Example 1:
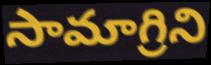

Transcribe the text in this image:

సామాగ్రిని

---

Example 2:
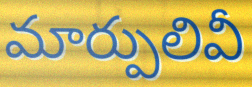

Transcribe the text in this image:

మార్పులివీ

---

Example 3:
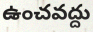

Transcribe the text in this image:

ఉంచవద్దు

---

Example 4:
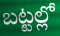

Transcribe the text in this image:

బట్టల్లో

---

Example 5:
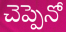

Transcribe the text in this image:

చెప్పెనో